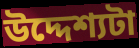
উদ্দেশ্যটা